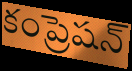
కంప్రెషన్